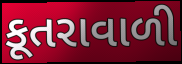
કૂતરાવાળી